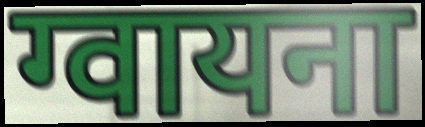
ग्वायना